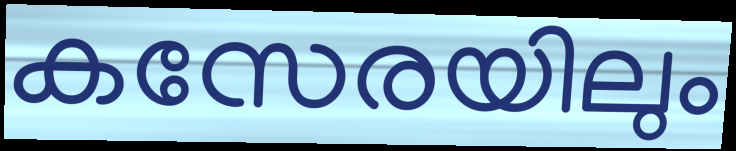
കസേരയിലും